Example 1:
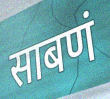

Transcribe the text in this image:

साबणं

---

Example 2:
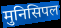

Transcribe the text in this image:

मुनिसिपल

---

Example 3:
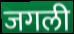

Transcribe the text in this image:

जगली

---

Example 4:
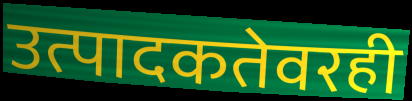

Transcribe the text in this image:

उत्पादकतेवरही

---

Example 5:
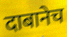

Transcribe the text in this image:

दाबानेच